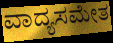
ವಾದ್ಯಸಮೇತ